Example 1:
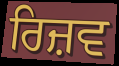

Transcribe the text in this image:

ਰਿਜ਼ਵ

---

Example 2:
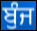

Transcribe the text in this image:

ਬੁੰਜ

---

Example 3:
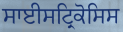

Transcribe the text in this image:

ਸਾਈਸਟ੍ਰਿਕੋਸਿਸ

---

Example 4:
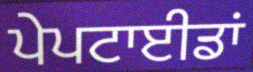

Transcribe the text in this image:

ਪੇਪਟਾਈਡਾਂ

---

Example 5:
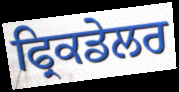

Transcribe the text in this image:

ਫ੍ਰਿਕਡੇਲਰ